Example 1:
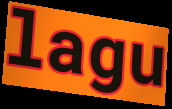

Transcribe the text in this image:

lagu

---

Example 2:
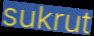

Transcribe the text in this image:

sukrut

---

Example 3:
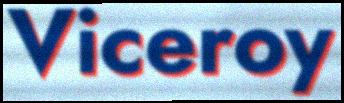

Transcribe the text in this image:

Viceroy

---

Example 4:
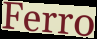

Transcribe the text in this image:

Ferro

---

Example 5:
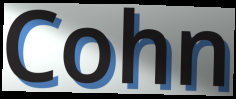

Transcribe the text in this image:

Cohn